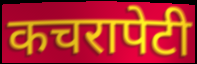
कचरापेटी